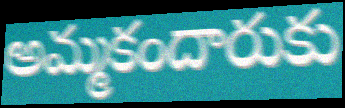
అమ్మకందారుకు